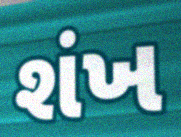
શંખ